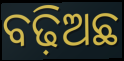
ବଢ଼ିଅଛ